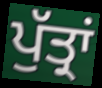
ਪੁੱਤ੍ਰਾਂ